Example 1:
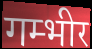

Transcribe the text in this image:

गम्भीर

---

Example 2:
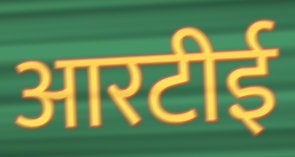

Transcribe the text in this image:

आरटीई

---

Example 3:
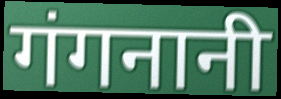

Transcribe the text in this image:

गंगनानी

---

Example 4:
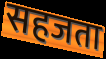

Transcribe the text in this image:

सहजता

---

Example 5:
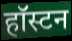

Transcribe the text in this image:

हॉस्टन